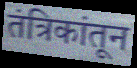
तंत्रिकांतून